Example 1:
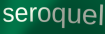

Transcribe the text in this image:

seroquel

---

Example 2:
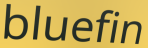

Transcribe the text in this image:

bluefin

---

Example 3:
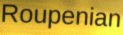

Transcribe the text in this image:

Roupenian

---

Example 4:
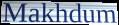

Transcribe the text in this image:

Makhdum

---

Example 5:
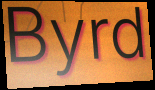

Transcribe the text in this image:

Byrd